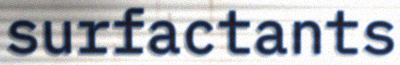
surfactants